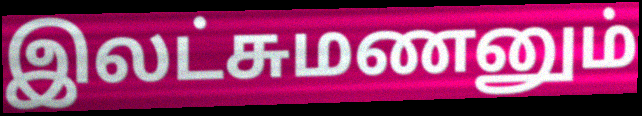
இலட்சுமணனும்